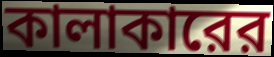
কালাকারের